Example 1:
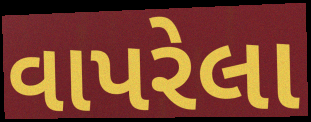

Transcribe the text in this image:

વાપરેલા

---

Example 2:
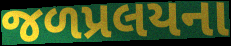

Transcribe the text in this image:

જળપ્રલયના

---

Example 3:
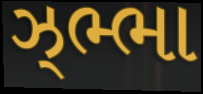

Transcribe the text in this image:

ઝ્ભ્ભા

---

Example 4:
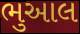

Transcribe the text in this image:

ભુઆલ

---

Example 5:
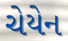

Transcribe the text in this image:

ચેયેન